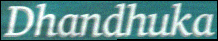
Dhandhuka